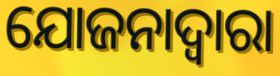
ଯୋଜନାଦ୍ବାରା